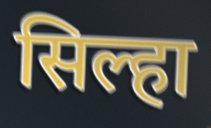
सिल्हा